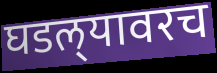
घडल्यावरच